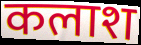
कलाश